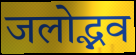
जलोद्भव